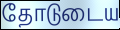
தோடுடைய